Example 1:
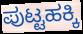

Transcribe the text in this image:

ಪುಟ್ಟಹಕ್ಕಿ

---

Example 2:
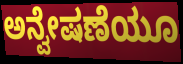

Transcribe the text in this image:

ಅನ್ವೇಷಣೆಯೂ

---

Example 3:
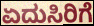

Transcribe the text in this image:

ಏದುಸಿರಿಗೆ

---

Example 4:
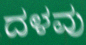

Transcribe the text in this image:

ದಳವು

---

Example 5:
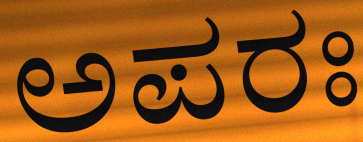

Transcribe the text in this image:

ಅಪರಃ